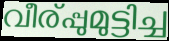
വീര്പ്പുമുട്ടിച്ച